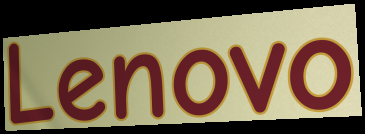
Lenovo